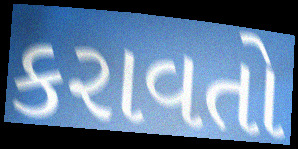
કરાવતો